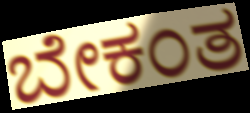
ಬೇಕಂತ